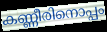
കണ്ണീരിനൊപ്പം